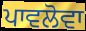
ਪਾਵਲੋਵਾ